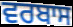
ਵਰਬਾਸ